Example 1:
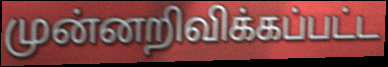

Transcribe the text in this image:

முன்னறிவிக்கப்பட்ட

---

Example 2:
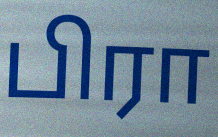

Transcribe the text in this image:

பிரா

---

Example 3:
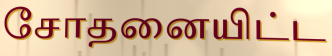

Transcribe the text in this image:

சோதனையிட்ட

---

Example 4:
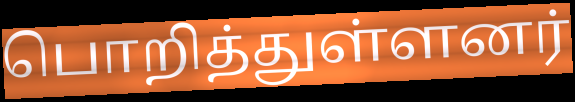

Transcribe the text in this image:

பொறித்துள்ளனர்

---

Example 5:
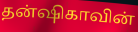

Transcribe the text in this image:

தன்ஷிகாவின்